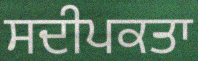
ਸਦੀਪਕਤਾ